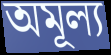
অমূল্য